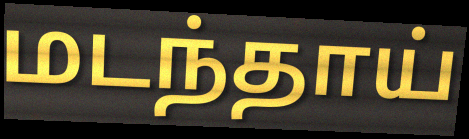
மடந்தாய்